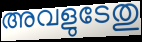
അവളുടേതു